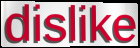
dislike